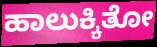
ಹಾಲುಕ್ಕಿತೋ